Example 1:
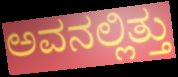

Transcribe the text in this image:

ಅವನಲ್ಲಿತ್ತು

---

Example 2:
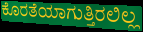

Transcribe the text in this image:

ಕೊರತೆಯಾಗುತ್ತಿರಲಿಲ್ಲ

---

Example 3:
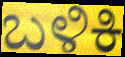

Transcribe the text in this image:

ಬಳಿಕಿ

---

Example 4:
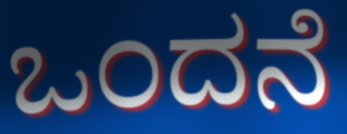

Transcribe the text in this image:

ಒಂದನೆ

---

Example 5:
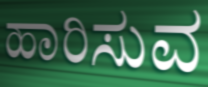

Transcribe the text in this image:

ಹಾರಿಸುವ